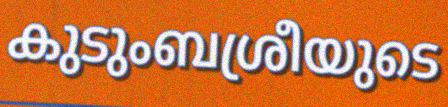
കുടുംബശ്രീയുടെ